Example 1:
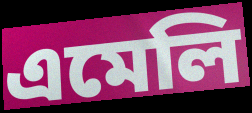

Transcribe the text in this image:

এমেলি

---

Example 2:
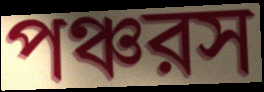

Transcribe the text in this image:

পঞ্চরস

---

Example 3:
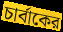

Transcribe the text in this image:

চার্বাকের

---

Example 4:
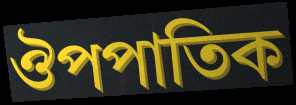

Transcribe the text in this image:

ঔপপাতিক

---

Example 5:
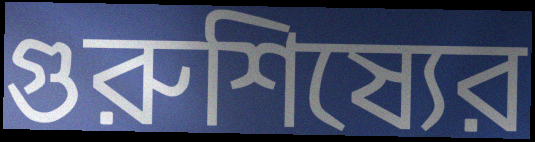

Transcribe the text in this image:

গুরুশিষ্যের